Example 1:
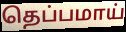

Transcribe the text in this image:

தெப்பமாய்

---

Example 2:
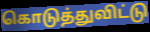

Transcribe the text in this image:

கொடுத்துவிட்டு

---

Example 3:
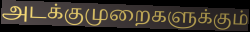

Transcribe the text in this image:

அடக்குமுறைகளுக்கும்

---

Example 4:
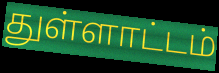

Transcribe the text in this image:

துள்ளாட்டம்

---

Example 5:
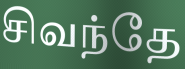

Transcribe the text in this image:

சிவந்தே